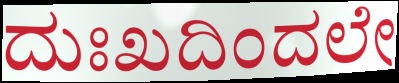
ದುಃಖದಿಂದಲೇ